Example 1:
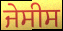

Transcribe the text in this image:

ਜੇਸੀਸ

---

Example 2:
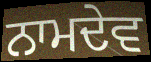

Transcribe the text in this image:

ਨਾਮਦੇਵ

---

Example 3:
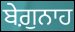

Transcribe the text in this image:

ਬੇਗ਼ੁਨਾਹ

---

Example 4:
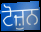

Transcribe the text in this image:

ਟੋਜ਼ੁਨ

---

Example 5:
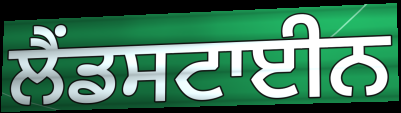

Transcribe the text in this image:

ਲੈਂਡਸਟਾਈਨ